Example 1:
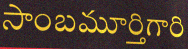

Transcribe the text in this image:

సాంబమూర్తిగారి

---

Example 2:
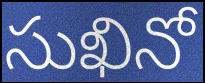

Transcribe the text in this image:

సుఖినో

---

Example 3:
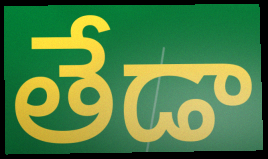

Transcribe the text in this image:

తేడా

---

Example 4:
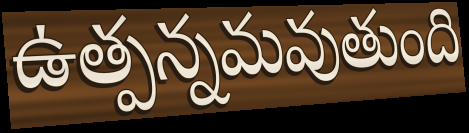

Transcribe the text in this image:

ఉత్పన్నమవుతుంది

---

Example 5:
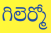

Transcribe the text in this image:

గిలెర్మో